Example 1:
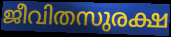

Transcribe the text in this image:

ജീവിതസുരക്ഷ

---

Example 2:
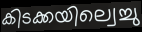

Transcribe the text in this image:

കിടക്കയില്വെച്ചു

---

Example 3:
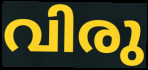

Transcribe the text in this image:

വിരു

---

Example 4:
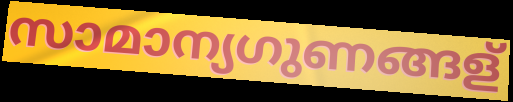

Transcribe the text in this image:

സാമാന്യഗുണങ്ങള്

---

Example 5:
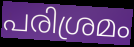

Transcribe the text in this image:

പരിശ്രമം